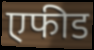
एफीड